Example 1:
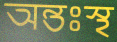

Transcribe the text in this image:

অন্তঃস্থ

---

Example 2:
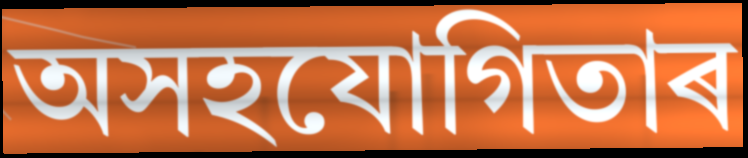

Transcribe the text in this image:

অসহযোগিতাৰ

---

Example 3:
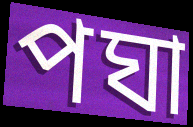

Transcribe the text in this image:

পঘা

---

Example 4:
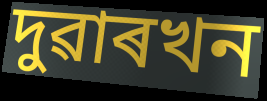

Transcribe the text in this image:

দুৱাৰখন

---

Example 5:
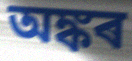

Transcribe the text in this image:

অঙ্কৰ